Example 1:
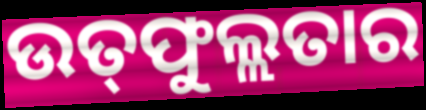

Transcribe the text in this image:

ଉତ୍‌ଫୁଲ୍ଲତାର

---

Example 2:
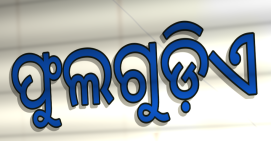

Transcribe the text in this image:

ଫୁଲଗୁଡ଼ିଏ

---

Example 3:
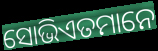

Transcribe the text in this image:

ସୋଭିଏତମାନେ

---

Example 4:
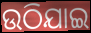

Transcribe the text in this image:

ଉଠିଯାଇ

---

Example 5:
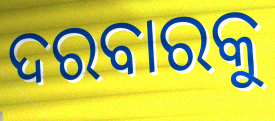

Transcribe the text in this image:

ଦରବାରକୁ